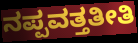
ನಪ್ಪವತ್ತತೀತಿ